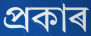
প্ৰকাৰ